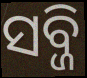
ସବ୍ଜି